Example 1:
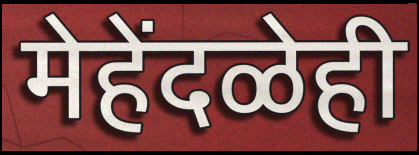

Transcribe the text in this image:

मेहेंदळेही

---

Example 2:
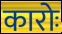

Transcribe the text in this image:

कारोः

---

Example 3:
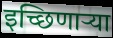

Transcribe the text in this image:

इच्छिणार्‍या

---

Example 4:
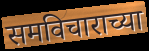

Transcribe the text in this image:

समविचाराच्या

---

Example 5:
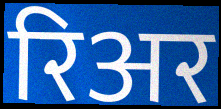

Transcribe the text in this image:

रिअर